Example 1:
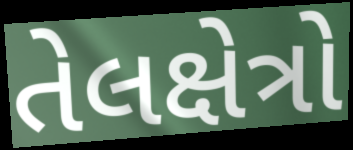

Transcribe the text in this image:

તેલક્ષેત્રો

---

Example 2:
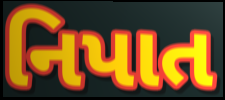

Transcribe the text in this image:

નિપાત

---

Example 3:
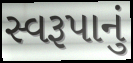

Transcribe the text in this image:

સ્વરૂપાનું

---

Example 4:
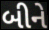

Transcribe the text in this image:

બીને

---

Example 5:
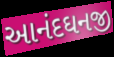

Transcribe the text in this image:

આનંદઘનજી